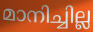
മാനിച്ചില്ല